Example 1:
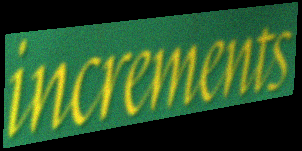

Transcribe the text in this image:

increments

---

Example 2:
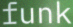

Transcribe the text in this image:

funk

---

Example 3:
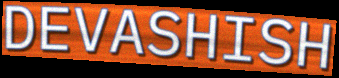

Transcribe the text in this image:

DEVASHISH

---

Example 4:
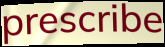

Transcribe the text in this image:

prescribe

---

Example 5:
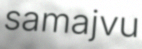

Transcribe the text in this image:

samajvu